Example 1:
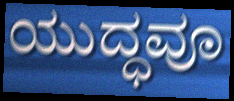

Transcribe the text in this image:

ಯುದ್ಧವೂ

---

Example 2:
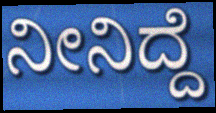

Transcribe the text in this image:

ನೀನಿದ್ದೆ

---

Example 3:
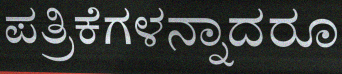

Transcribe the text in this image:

ಪತ್ರಿಕೆಗಳನ್ನಾದರೂ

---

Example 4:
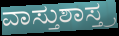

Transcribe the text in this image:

ವಾಸ್ತುಶಾಸ್ತ್ರ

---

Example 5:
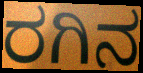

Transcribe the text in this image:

ರಗಿನ